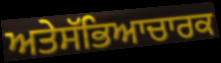
ਅਤੇਸੱਭਿਆਚਾਰਕ